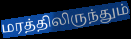
மரத்திலிருந்தும்